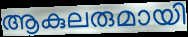
ആകുലരുമായി